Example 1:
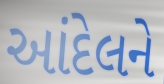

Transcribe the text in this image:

આંદેલને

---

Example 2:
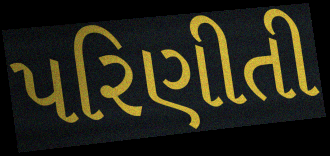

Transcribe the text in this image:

પરિણીતી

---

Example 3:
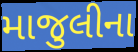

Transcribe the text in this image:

માજુલીના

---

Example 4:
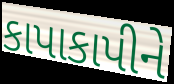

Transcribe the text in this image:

કાપાકાપીને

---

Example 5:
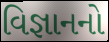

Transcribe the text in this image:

વિજ્ઞાનનો